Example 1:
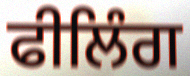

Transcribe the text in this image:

ਫੀਲਿੰਗ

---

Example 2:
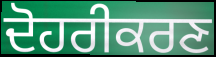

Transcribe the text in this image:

ਦੋਹਰੀਕਰਣ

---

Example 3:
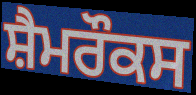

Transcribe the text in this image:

ਸ਼ੈਮਰੌਕਸ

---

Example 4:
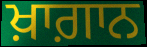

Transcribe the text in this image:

ਖ਼ਾਗ਼ਾਨ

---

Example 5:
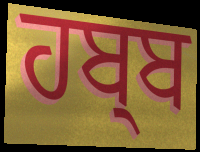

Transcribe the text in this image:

ਹਬ੍ਬ